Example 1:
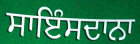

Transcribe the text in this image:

ਸਾਇੰਸਦਾਨਾ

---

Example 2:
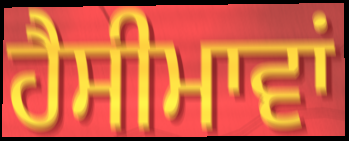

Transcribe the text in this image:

ਹੈਸੀਮਾਵਾਂ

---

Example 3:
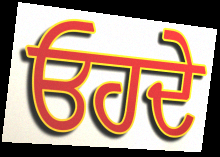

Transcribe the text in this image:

ਓਹਦੇ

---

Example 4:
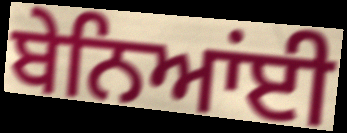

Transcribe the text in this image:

ਬੇਨਿਆਂਈ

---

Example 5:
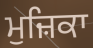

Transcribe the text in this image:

ਮੁਜ਼ਿਕਾ